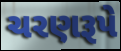
ચરણરૂપે